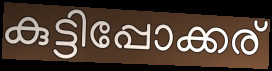
കുട്ടിപ്പോക്കര്